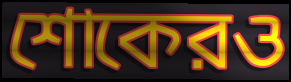
শোকেরও